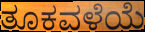
ತೂಕವಳೆಯೆ